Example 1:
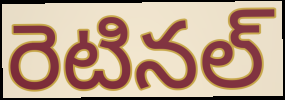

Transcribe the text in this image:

రెటినల్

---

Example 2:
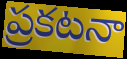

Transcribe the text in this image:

ప్రకటనా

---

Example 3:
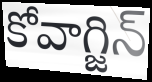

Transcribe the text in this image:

కోవాగ్జిన్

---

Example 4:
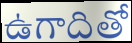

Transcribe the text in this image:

ఉగాదితో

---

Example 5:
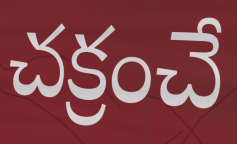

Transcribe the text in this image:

చక్రంచే